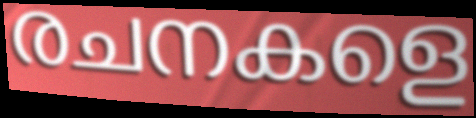
രചനകളെ